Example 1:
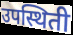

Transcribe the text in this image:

उपस्थिती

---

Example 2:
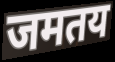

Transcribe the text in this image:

जमतय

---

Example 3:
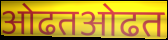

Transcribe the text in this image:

ओढतओढत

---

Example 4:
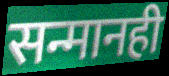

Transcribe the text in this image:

सन्मानही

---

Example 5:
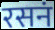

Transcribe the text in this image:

रसनं